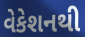
વેકેશનથી